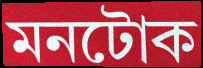
মনটোক